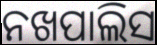
ନଖପାଲିସ